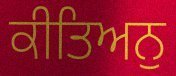
ਕੀਤਿਅਨੁ